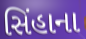
સિંહાના